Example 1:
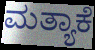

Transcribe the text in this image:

ಮತ್ಯಾಕೆ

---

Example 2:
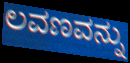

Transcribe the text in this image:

ಲವಣವನ್ನು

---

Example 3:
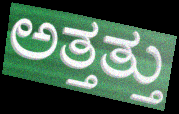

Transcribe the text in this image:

ಅತ್ತತ್ತು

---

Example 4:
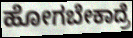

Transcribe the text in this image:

ಹೋಗಬೇಕಾದ್ರೆ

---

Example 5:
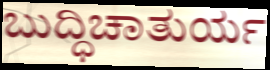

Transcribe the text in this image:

ಬುದ್ಧಿಚಾತುರ್ಯ